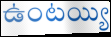
ఉంటయ్యి